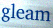
gleam